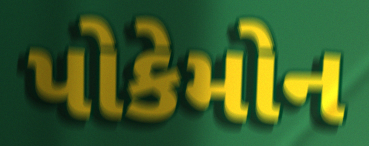
પોકેમોન